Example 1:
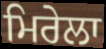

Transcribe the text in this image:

ਮਿਰੇਲਾ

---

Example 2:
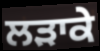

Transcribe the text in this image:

ਲੜਾਕੇ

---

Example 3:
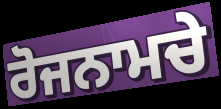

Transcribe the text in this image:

ਰੋਜਨਾਮਚੇ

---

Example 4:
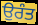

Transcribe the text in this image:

ਉਰੰਤ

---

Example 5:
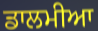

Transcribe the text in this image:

ਡਾਲਮੀਆ